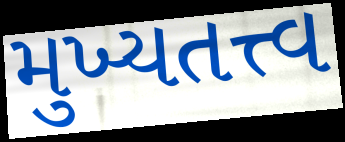
મુખ્યતત્ત્વ